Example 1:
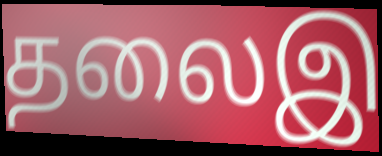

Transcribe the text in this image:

தலைஇ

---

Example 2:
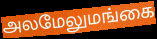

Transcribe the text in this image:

அலமேலுமங்கை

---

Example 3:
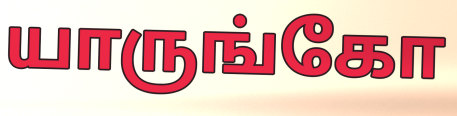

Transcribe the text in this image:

யாருங்கோ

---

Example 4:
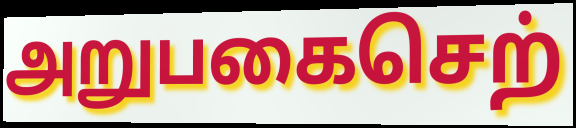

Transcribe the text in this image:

அறுபகைசெற்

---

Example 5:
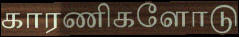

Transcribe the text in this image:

காரணிகளோடு